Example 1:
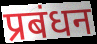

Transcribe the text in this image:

प्रबंधन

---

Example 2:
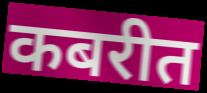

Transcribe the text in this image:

कबरीत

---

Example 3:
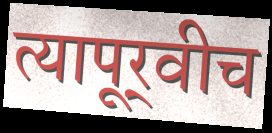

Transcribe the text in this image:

त्यापूर्वीच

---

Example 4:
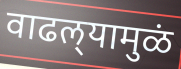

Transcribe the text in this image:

वाढल्यामुळं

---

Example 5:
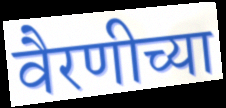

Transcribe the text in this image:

वैरणीच्या